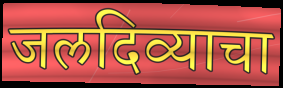
जलदिव्याचा